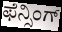
ಫೆನ್ಸಿಂಗ್